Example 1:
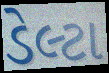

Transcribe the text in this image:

ડેલ્ટા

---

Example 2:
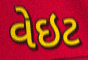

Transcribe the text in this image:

વેઇટ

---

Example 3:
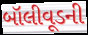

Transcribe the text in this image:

બૉલીવૂડની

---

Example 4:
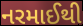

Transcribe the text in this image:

નરમાઈથી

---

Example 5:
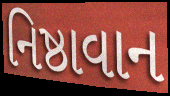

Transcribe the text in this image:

નિષ્ઠાવાન